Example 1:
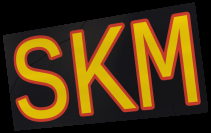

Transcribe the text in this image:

SKM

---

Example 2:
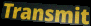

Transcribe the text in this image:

Transmit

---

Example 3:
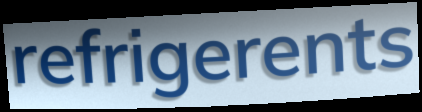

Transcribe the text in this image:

refrigerents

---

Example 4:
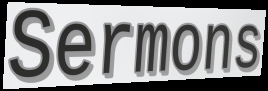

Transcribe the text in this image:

Sermons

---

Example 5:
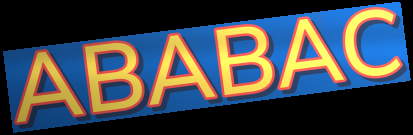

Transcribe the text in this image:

ABABAC